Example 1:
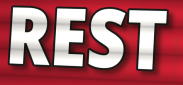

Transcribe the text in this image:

REST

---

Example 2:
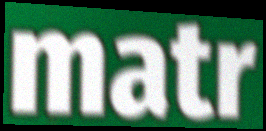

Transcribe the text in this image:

matr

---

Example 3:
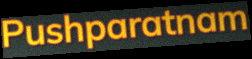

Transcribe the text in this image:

Pushparatnam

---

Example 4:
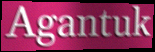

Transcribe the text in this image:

Agantuk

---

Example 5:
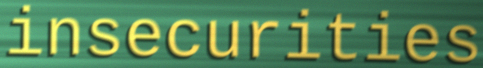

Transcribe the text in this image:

insecurities